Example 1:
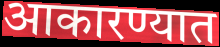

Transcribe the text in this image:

आकारण्यात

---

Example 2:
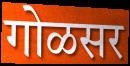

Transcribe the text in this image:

गोळसर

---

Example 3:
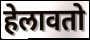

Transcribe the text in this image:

हेलावतो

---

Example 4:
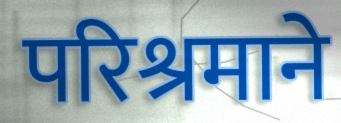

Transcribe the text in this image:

परिश्रमाने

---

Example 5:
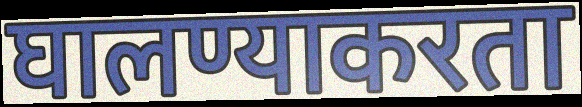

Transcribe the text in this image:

घालण्याकरता